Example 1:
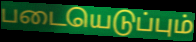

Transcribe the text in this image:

படையெடுப்பும்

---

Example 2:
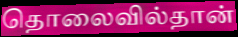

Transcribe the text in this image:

தொலைவில்தான்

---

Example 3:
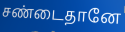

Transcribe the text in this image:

சண்டைதானே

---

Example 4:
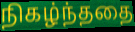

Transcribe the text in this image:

நிகழ்ந்ததை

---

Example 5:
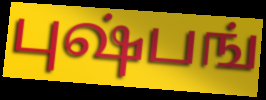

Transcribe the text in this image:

புஷ்பங்